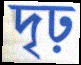
দৃঢ়